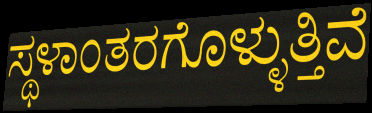
ಸ್ಥಳಾಂತರಗೊಳ್ಳುತ್ತಿವೆ